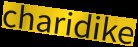
charidike